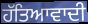
ਹੱਤਿਆਵਾਦੀ